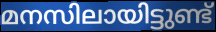
മനസിലായിട്ടുണ്ട്